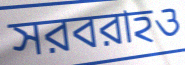
সরবরাহও